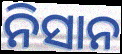
ନିସାନ